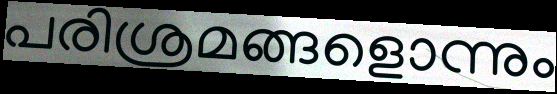
പരിശ്രമങ്ങളൊന്നും